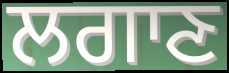
ਲਗਾਣ